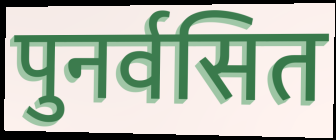
पुनर्वसित